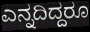
ಎನ್ನದಿದ್ದರೂ